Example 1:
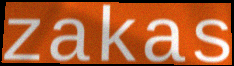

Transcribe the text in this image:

zakas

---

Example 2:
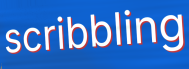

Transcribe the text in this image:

scribbling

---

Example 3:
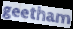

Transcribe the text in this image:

geetham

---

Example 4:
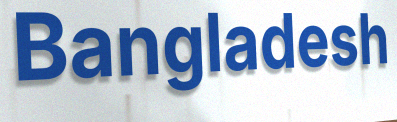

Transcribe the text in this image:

Bangladesh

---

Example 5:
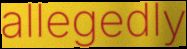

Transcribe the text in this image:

allegedly